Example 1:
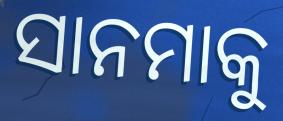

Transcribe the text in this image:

ସାନମାକୁ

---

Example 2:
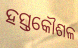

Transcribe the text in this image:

ହସ୍ତକୌଶଳ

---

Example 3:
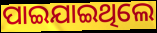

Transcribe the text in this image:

ପାଇଯାଇଥିଲେ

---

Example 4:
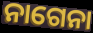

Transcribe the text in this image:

ନାଗେନା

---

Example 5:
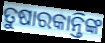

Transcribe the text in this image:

ତୁଷାରକାନ୍ତିଙ୍କ